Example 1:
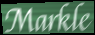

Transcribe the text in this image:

Markle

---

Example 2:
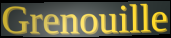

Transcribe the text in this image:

Grenouille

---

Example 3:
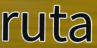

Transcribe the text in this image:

ruta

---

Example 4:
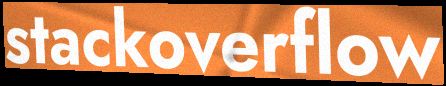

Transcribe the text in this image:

stackoverflow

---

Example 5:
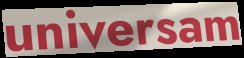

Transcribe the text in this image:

universam